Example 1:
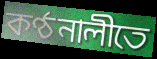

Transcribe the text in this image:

কণ্ঠনালীতে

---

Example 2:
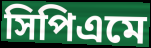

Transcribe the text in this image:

সিপিএমে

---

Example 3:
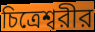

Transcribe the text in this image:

চিত্রেশ্বরীর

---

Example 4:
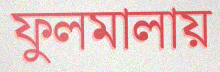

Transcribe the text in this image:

ফুলমালায়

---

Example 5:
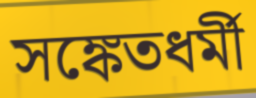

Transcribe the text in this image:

সঙ্কেতধর্মী